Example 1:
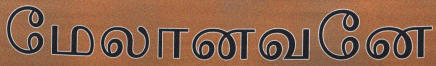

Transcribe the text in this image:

மேலானவனே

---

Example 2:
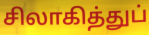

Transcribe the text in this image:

சிலாகித்துப்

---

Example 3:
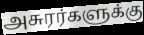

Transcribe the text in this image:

அசுரர்களுக்கு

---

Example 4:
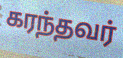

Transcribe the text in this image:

கரந்தவர்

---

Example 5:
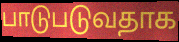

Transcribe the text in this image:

பாடுபடுவதாக